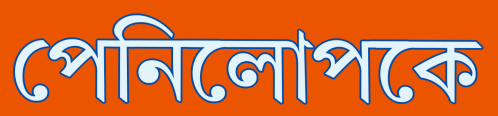
পেনিলোপকে